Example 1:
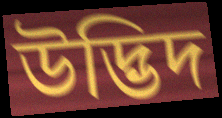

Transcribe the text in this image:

উদ্ভিদ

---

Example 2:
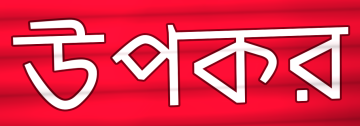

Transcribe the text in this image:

উপকর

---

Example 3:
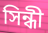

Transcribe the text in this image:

সিন্ধী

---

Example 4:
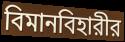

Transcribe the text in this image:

বিমানবিহারীর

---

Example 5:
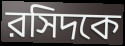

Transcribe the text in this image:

রসিদকে